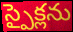
స్పైక్లను